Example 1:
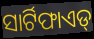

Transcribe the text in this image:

ସାର୍ଟିଫାଏଡ୍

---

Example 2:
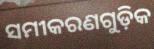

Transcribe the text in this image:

ସମୀକରଣଗୁଡ଼ିକ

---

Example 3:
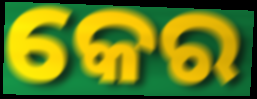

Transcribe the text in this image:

କେର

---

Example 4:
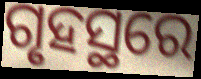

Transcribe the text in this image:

ଗୃହସ୍ଥରେ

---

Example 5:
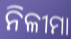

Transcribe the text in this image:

ନିଳୀମା